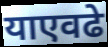
याएवढे